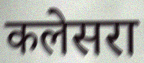
कलेसरा